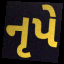
નૃપે